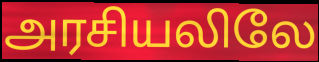
அரசியலிலே